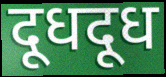
दूधदूध